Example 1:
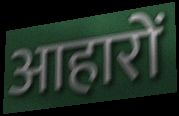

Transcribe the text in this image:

आहारों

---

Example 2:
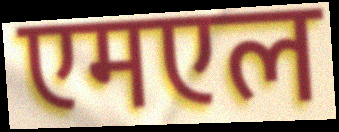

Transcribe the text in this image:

एमएल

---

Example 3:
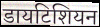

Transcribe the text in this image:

डायटिशियन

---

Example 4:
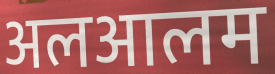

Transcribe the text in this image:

अलआलम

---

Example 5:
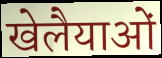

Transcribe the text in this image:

खेलैयाओं